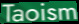
Taoism